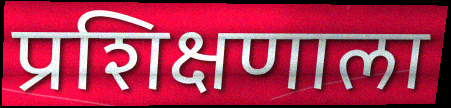
प्रशिक्षणाला